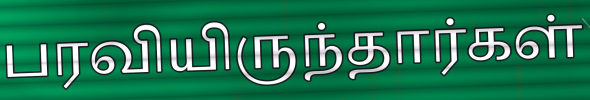
பரவியிருந்தார்கள்